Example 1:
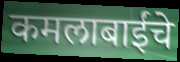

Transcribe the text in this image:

कमलाबाईंचे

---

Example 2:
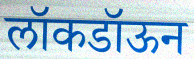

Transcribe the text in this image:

लॉकडॉऊन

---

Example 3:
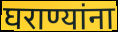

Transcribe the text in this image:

घराण्यांना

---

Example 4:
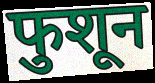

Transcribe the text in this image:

फुशून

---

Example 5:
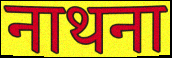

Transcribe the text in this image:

नाथना